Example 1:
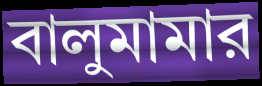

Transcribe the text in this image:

বালুমামার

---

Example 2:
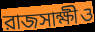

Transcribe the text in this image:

রাজসাক্ষীও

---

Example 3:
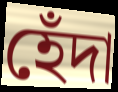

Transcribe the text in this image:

হেঁদা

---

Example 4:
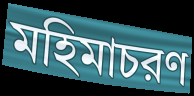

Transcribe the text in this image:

মহিমাচরণ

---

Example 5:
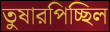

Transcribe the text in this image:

তুষারপিচ্ছিল